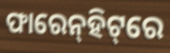
ଫାରେନ୍‌ହିଟ୍‌ରେ